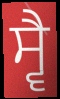
ਸ੍ਵੈ